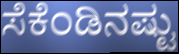
ಸೆಕೆಂಡಿನಷ್ಟು